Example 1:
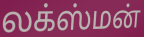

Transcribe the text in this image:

லக்ஸ்மன்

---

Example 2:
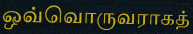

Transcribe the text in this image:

ஒவ்வொருவராகத்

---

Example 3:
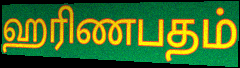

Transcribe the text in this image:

ஹரிணபதம்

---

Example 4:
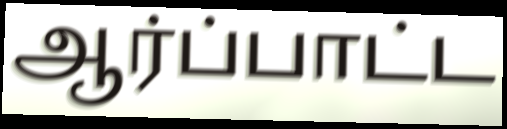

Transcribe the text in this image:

ஆர்ப்பாட்ட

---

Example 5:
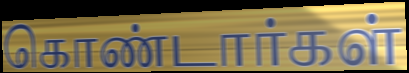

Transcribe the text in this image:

கொண்டார்கள்